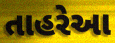
તાહરેઆ